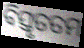
ବିସ୍ତୃତତମ